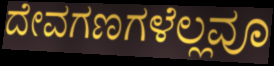
ದೇವಗಣಗಳೆಲ್ಲವೂ